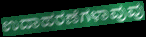
ಉದಾಹರಣೆಗಳಾವುವು